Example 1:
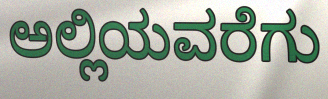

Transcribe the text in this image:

ಅಲ್ಲಿಯವರೆಗು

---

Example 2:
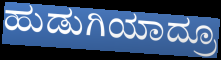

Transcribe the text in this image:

ಹುಡುಗಿಯಾದ್ರೂ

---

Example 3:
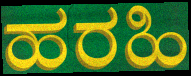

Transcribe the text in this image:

ಹರಹಿ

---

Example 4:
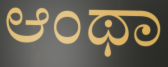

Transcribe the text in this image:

ಆಂಥಾ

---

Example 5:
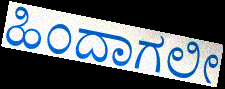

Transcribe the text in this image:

ಹಿಂದಾಗಲೀ